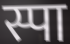
स्पा